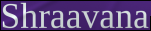
Shraavana